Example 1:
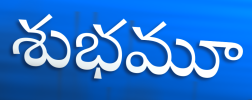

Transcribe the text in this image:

శుభమూ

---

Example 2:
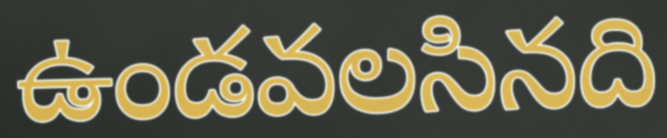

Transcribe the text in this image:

ఉండవలసినది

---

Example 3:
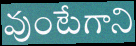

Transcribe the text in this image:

వుంటేగాని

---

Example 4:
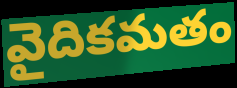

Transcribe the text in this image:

వైదికమతం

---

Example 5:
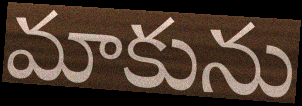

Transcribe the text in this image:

మాకును